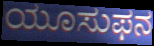
ಯೂಸುಫನ